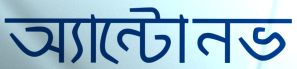
অ্যান্টোনভ